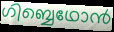
ഗിബ്ബെഥോൻ